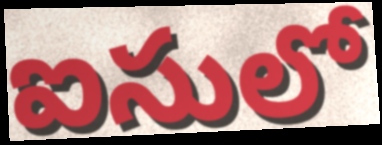
ఐసులో